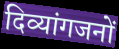
दिव्यांगजनों